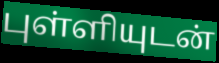
புள்ளியுடன்